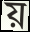
য়